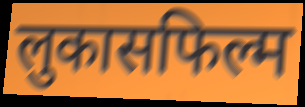
लुकासफिल्म